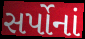
સર્પોનાં